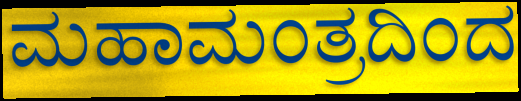
ಮಹಾಮಂತ್ರದಿಂದ